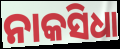
ନାକସିଧା